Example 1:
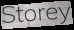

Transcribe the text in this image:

Storey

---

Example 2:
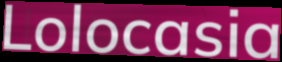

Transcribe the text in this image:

Lolocasia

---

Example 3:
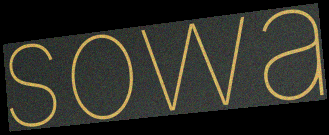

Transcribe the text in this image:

sowa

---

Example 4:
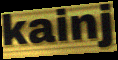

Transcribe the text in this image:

kainj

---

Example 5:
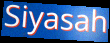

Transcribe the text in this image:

Siyasah